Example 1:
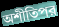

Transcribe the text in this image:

অশীতিপর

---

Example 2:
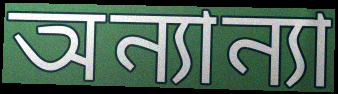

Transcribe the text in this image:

অন্যান্যা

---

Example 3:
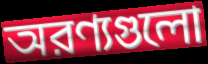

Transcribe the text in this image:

অরণ্যগুলো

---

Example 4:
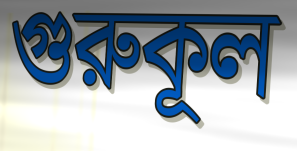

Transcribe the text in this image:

গুরুকূল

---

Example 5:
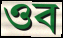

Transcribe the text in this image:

ওব